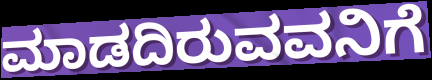
ಮಾಡದಿರುವವನಿಗೆ